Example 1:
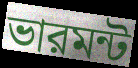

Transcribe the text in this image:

ভারমন্ট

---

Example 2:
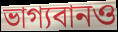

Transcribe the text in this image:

ভাগ্যবানও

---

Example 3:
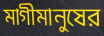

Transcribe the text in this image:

মাগীমানুষের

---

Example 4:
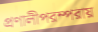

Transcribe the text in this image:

প্রণালীপরম্পরায়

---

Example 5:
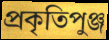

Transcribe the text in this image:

প্রকৃতিপুঞ্জ